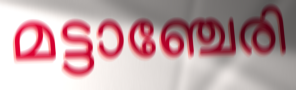
മട്ടാഞ്ചേരി